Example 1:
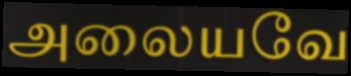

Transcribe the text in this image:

அலையவே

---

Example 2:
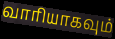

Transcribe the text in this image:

வாரியாகவும்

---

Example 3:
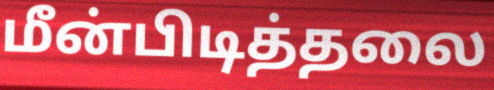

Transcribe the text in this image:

மீன்பிடித்தலை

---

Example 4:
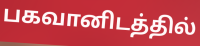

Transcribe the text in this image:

பகவானிடத்தில்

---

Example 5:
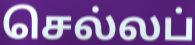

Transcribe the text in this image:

செல்லப்